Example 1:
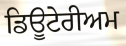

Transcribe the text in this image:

ਡਿਊਟੇਰੀਅਮ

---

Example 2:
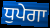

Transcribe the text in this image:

ਧੁਪੇਗਾ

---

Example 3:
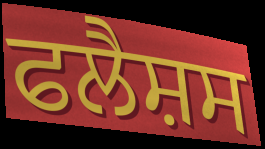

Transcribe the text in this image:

ਫਲੈਸ਼ਸ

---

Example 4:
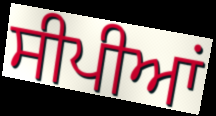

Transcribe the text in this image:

ਸੀਪੀਆਂ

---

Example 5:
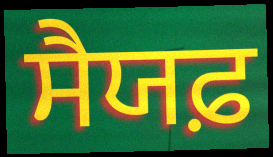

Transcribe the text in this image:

ਸੈਯਫ਼